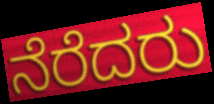
ನೆರೆದರು